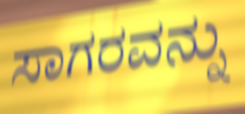
ಸಾಗರವನ್ನು